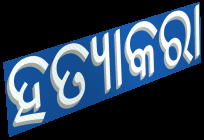
ହତ୍ୟାକରା